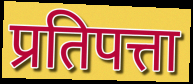
प्रतिपत्ता